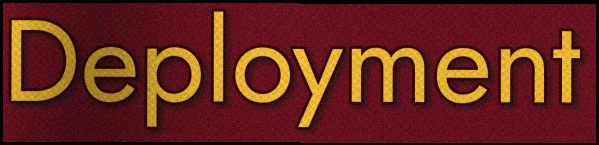
Deployment